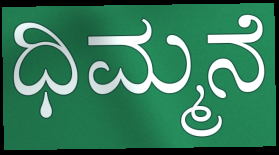
ಧಿಮ್ಮನೆ